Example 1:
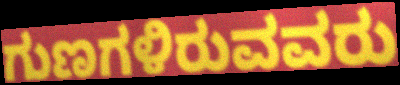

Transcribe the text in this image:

ಗುಣಗಳಿರುವವರು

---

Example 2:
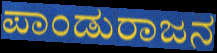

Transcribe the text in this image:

ಪಾಂಡುರಾಜನ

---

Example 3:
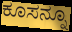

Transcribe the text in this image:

ಕೂಸನ್ನೂ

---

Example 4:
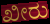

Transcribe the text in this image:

ಖೀರು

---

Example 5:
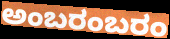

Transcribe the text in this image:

ಅಂಬರಂಬರಂ